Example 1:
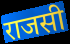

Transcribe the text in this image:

राजसी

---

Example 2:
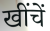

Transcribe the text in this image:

खींचें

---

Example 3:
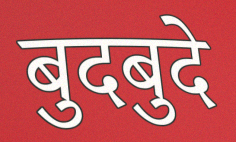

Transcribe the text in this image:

बुदबुदे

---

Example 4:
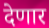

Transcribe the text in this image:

देणार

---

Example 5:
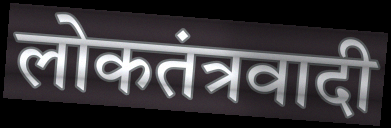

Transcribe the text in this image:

लोकतंत्रवादी